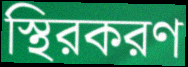
স্থিরকরণ